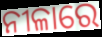
ନୀଳାରେ